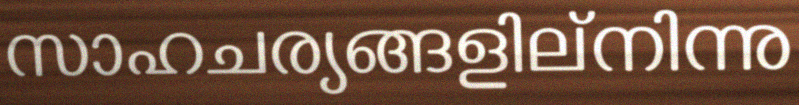
സാഹചര്യങ്ങളില്നിന്നു